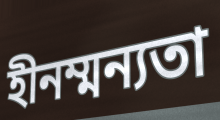
হীনম্মন্যতা